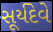
સૂર્યદેવે